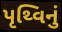
પૃથ્વિનું